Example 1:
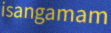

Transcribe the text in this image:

isangamam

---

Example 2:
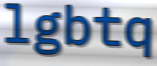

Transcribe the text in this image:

lgbtq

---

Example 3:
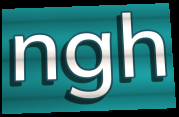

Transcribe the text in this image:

ngh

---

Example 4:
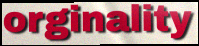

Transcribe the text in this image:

orginality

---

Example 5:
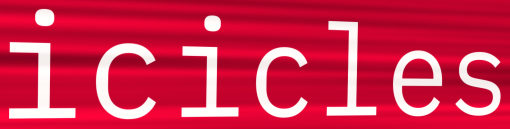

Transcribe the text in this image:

icicles